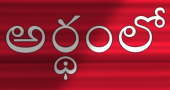
అర్థంలో